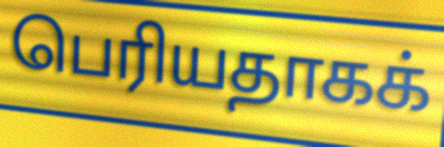
பெரியதாகக்